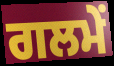
ਗਲਮੇਂ